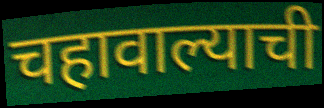
चहावाल्याची